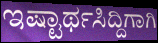
ಇಷ್ಟಾರ್ಥಸಿದ್ದಿಗಾಗಿ